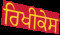
ਰਿਖੀਕੇਸ